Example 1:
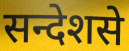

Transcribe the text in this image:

सन्देशसे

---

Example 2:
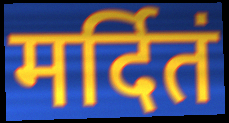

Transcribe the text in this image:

मर्दितं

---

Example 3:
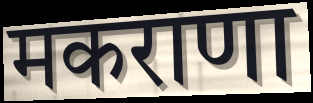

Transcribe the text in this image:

मकराणा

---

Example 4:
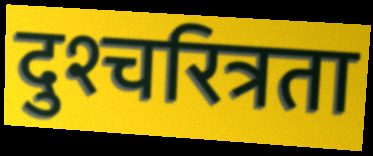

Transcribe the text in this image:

दुश्चरित्रता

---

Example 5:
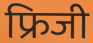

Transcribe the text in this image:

फ्रिजी